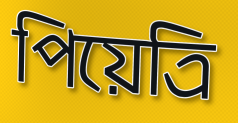
পিয়েত্রি